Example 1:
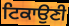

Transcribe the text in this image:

ਟਿਕਾਉਣੀ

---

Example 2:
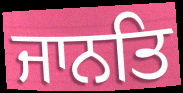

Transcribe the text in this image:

ਜਾਨਤਿ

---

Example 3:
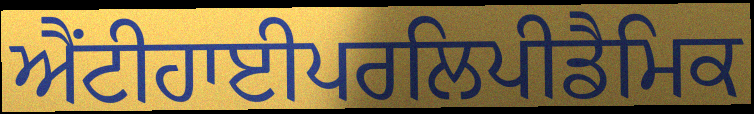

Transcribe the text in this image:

ਐਂਟੀਹਾਈਪਰਲਿਪੀਡੈਮਿਕ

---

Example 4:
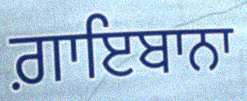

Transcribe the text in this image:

ਗ਼ਾਇਬਾਨਾ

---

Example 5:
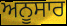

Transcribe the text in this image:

ਅਨੂਸਾਰ